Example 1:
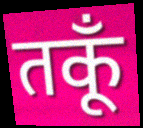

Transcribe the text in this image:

तकूँ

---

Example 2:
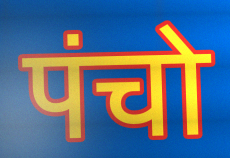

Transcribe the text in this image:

पंचो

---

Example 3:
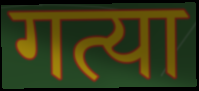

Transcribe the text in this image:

गत्या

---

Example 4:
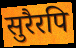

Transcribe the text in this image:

सुरैरपि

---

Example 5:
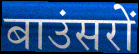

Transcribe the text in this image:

बाउंसरों